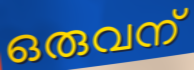
ഒരുവന്